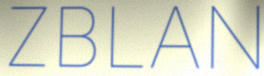
ZBLAN